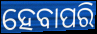
ହେବାପରି